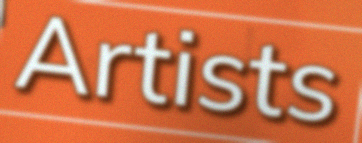
Artists